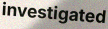
investigated